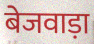
बेजवाड़ा